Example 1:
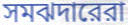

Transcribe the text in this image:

সমঝদারেরা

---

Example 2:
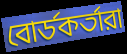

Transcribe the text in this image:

বোর্ডকর্তারা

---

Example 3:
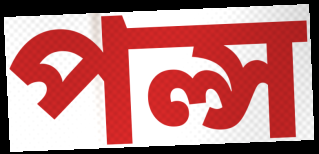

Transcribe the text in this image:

পল্স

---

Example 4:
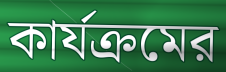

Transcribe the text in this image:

কার্যক্রমের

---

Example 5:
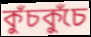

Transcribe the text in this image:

কুঁচকুঁচে